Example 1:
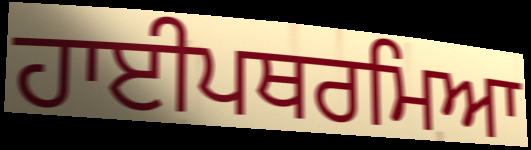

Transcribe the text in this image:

ਹਾਈਪਥਰਮਿਆ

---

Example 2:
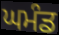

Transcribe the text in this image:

ਘਮੰਡ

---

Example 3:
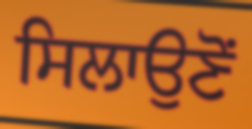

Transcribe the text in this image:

ਸਿਲਾਉਣੋਂ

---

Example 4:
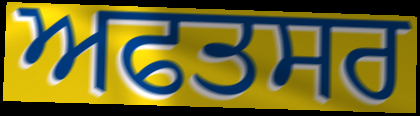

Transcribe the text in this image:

ਅਫਤਸਰ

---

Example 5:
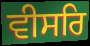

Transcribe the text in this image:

ਵੀਸਰਿ